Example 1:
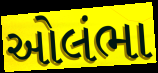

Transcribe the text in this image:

ઓલંભા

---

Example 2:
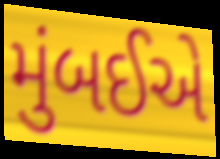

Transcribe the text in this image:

મુંબઈએ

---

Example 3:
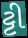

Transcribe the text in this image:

ટ્ટી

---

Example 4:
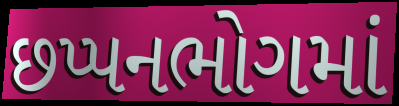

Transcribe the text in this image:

છપ્પનભોગમાં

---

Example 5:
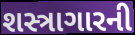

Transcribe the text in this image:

શસ્ત્રાગારની